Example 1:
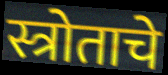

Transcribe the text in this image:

स्त्रोताचे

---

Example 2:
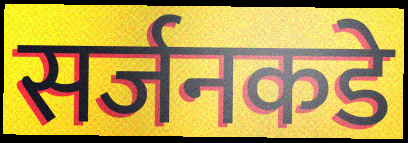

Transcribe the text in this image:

सर्जनकडे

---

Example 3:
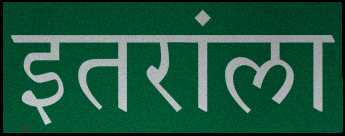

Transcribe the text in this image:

इतरांला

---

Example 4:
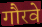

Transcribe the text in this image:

गौरवे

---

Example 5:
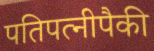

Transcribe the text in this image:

पतिपत्नीपैकी